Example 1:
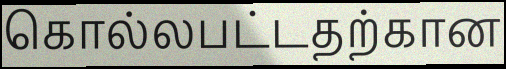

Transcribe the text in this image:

கொல்லபட்டதற்கான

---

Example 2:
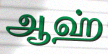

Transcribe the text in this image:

ஆஹ்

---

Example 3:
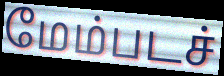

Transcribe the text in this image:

மேம்படச்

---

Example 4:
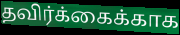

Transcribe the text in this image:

தவிர்க்கைக்காக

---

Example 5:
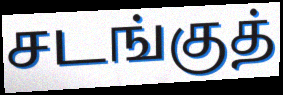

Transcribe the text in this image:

சடங்குத்